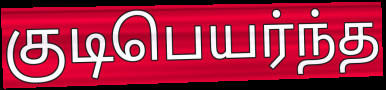
குடிபெயர்ந்த